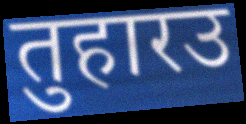
तुहारउ